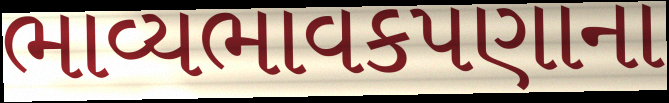
ભાવ્યભાવકપણાના